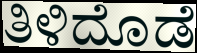
ತಿಳಿದೊಡೆ